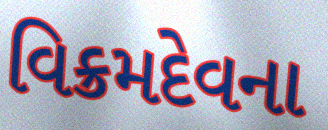
વિક્રમદેવના